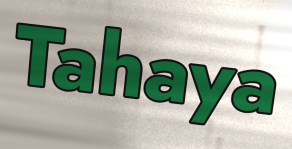
Tahaya